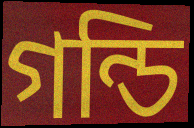
গন্ডি